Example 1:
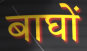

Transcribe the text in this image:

बाघों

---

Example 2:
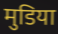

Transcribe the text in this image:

मुडिया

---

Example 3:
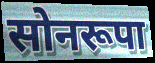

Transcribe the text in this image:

सोनरूपा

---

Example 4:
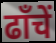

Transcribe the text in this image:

ढाँचें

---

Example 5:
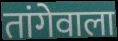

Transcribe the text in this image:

तांगेवाला